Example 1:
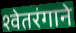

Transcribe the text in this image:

श्वेतरंगाने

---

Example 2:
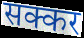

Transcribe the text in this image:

सक्कर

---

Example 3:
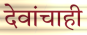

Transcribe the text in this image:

देवांचाही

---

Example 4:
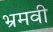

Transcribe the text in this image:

भ्रमवी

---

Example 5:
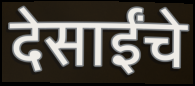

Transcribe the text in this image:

देसाईंचे